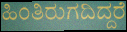
ಹಿಂತಿರುಗದಿದ್ದರೆ